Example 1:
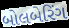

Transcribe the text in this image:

બોલબેરિંગ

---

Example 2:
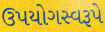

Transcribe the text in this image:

ઉપયોગસ્વરૂપે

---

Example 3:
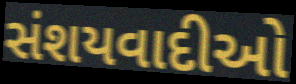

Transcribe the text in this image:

સંશયવાદીઓ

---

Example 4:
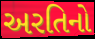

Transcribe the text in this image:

અરતિનો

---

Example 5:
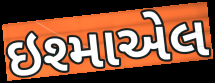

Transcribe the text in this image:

ઇશ્માએલ